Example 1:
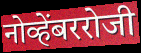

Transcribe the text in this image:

नोव्हेंबररोजी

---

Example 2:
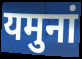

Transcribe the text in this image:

यमुनां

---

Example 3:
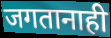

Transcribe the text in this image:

जगतानाही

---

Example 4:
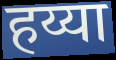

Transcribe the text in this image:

हय्या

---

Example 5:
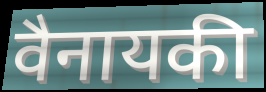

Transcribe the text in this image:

वैनायकी